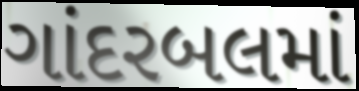
ગાંદરબલમાં